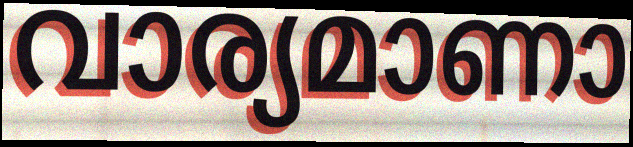
വാര്യമാണാ